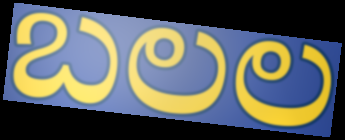
బలల